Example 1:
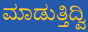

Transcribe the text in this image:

ಮಾಡುತ್ತಿದ್ವಿ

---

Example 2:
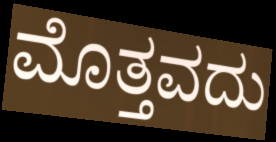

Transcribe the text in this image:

ಮೊತ್ತವದು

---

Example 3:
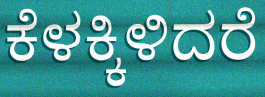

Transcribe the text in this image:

ಕೆಳಕ್ಕಿಳಿದರೆ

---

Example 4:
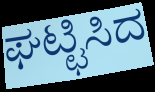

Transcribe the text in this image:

ಘಟ್ಟಿಸಿದ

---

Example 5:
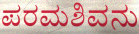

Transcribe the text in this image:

ಪರಮಶಿವನು